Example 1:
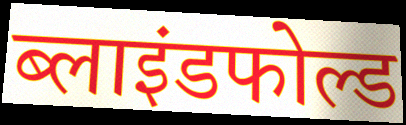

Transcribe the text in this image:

ब्लाइंडफोल्ड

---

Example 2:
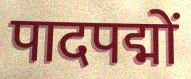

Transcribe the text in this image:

पादपद्मों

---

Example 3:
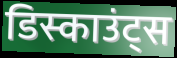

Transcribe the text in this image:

डिस्काउंट्स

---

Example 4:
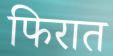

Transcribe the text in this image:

फिरात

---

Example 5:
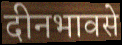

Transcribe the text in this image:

दीनभावसे